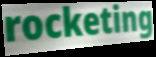
rocketing